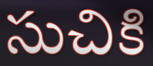
సుచికి